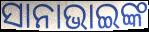
ସାନାଭାଇଙ୍କ